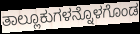
ತಾಲ್ಲೂಕುಗಳನ್ನೊಳಗೊಂಡ